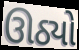
ઊઠ્યો